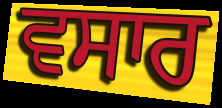
ਵਸਾਰ